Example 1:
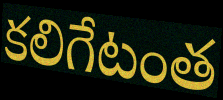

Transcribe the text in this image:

కలిగేటంత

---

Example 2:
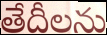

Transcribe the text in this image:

తేదీలను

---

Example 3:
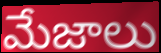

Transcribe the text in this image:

మేజాలు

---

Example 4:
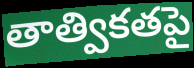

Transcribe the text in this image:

తాత్వికతపై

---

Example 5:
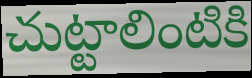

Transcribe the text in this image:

చుట్టాలింటికి